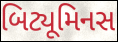
બિટ્યૂમિનસ